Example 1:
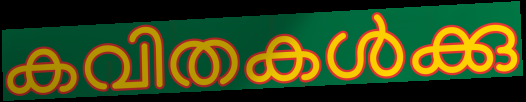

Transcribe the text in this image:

കവിതകൾക്കു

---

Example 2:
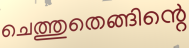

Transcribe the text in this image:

ചെത്തുതെങ്ങിന്റെ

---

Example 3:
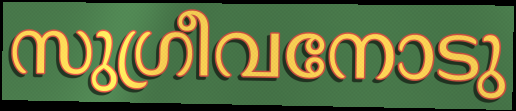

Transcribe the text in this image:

സുഗ്രീവനോടു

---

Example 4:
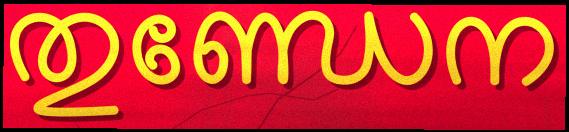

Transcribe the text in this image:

തുണ്ഡേന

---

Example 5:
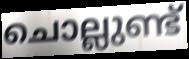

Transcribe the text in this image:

ചൊല്ലുണ്ട്